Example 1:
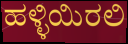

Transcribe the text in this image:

ಹಳ್ಳಿಯಿರಲಿ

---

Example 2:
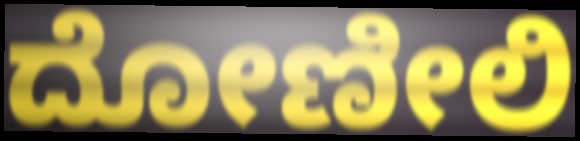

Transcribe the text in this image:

ದೋಣೀಲಿ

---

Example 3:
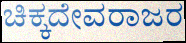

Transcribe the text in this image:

ಚಿಕ್ಕದೇವರಾಜರ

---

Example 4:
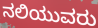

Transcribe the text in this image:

ನಲಿಯುವರು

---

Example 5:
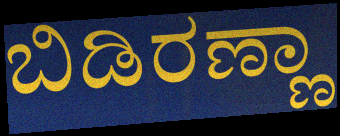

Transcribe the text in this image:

ಬಿಡಿರಣ್ಣಾ